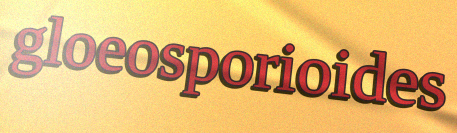
gloeosporioides